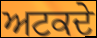
ਅਟਕਦੇ